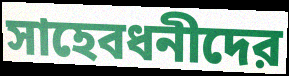
সাহেবধনীদের